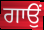
ਗਾਉਂ